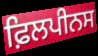
ਫ਼ਿਲਪੀਨਸ